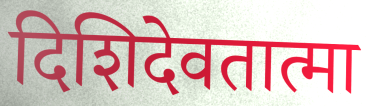
दिशिदेवतात्मा